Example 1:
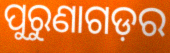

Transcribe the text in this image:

ପୁରୁଣାଗଡ଼ର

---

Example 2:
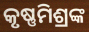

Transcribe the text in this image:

କୃଷ୍ଣମିଶ୍ରଙ୍କ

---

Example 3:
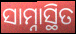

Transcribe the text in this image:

ସାମ୍ନାସ୍ଥିତ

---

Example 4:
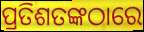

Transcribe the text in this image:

ପ୍ରତିଶତଙ୍କଠାରେ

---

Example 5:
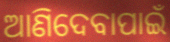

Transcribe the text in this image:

ଆଣିଦେବାପାଇଁ